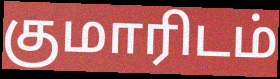
குமாரிடம்